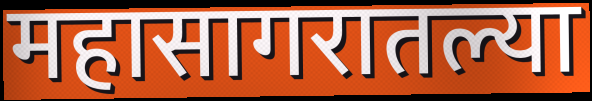
महासागरातल्या